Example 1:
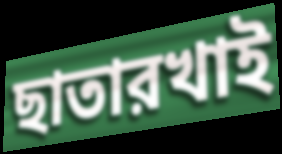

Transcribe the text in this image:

ছাতারখাই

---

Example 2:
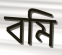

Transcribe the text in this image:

বমি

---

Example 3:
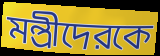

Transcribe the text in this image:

মন্ত্রীদেরকে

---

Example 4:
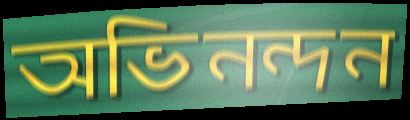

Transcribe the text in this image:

অভিনন্দন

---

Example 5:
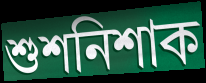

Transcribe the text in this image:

শুশনিশাক